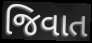
જિવાત